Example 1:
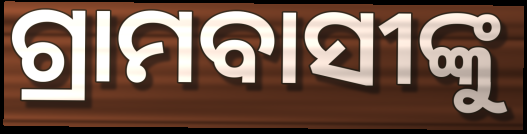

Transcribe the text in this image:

ଗ୍ରାମବାସୀଙ୍କୁ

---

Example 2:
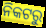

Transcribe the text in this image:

ନିକଟରୁ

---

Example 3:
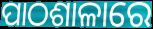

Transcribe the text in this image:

ପାଠଶାଳାରେ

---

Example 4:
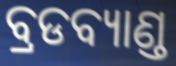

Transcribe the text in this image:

ବ୍ରଡବ୍ୟାଣ୍ଡ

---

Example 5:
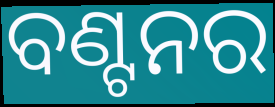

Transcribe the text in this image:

ବଣ୍ଟନର